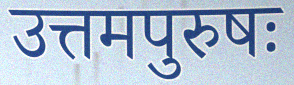
उत्तमपुरुषः